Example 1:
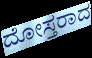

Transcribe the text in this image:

ದೋಸ್ತರಾದ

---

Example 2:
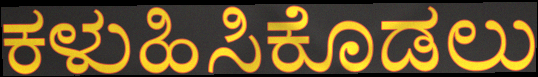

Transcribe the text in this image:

ಕಳುಹಿಸಿಕೊಡಲು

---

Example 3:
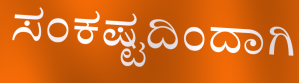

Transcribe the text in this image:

ಸಂಕಷ್ಟದಿಂದಾಗಿ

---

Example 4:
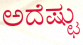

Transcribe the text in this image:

ಅದೆಷ್ಟು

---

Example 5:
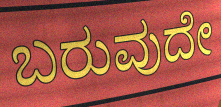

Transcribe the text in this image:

ಬರುವುದೇ